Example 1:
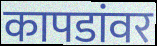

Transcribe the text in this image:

कापडांवर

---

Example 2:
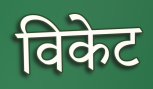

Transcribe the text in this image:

विकेट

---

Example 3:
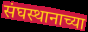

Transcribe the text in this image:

संघस्थानाच्या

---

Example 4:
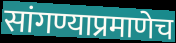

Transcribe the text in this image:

सांगण्याप्रमाणेच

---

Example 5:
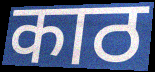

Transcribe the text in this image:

काठ